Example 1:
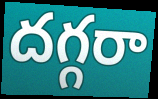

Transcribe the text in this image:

దగ్గరా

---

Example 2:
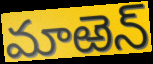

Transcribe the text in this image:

మాఱెన్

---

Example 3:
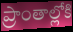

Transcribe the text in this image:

ప్రాంతాల్లోకి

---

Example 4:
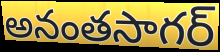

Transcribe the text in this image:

అనంతసాగర్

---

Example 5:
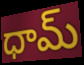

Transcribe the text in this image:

ధామ్